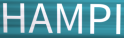
HAMPI